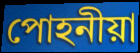
পোহনীয়া